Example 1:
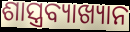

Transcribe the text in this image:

ଶାସ୍ତ୍ରବ୍ୟାଖ୍ୟାନ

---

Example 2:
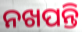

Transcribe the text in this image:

ନଖପନ୍ତି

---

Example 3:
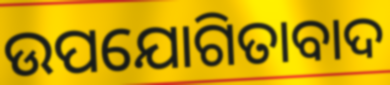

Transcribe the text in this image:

ଉପଯୋଗିତାବାଦ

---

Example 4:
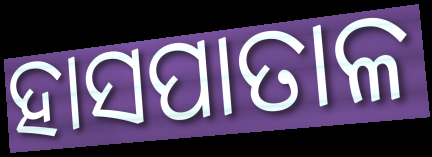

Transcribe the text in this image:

ହାସପାତାଳ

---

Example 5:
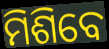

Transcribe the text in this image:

ମିଶିବେ